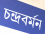
চন্দ্রবর্মন